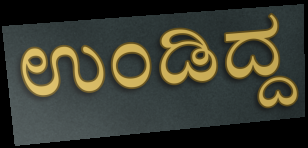
ಉಂಡಿದ್ದ